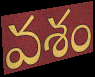
వశం